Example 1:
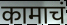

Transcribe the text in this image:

कामाचं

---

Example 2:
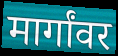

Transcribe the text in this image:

मार्गांवर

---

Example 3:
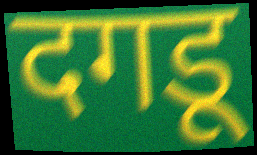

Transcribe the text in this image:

दगडू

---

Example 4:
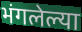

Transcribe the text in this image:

भंगलेल्या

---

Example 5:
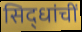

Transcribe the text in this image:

सिद्धांचीं